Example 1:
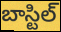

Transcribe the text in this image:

బాస్టిల్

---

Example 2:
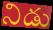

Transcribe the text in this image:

నిడు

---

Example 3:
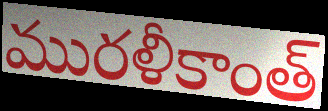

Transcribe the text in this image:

మురళీకాంత్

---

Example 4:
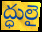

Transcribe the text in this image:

ద్ధులై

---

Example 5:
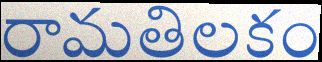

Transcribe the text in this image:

రామతిలకం